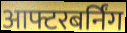
आफ्टरबर्निंग